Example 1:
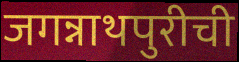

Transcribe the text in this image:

जगन्नाथपुरीची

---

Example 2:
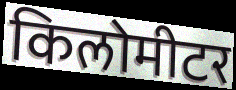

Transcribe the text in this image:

किलोमीटर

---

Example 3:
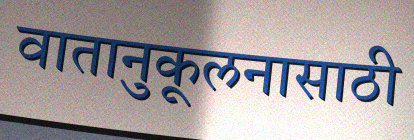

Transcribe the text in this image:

वातानुकूलनासाठी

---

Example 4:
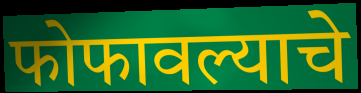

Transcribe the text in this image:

फोफावल्याचे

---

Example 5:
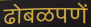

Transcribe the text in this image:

ढोबळपणें